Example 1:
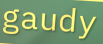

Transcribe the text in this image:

gaudy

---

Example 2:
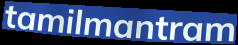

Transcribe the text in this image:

tamilmantram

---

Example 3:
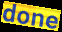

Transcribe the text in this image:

done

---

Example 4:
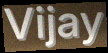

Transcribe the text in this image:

Vijay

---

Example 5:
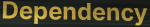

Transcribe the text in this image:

Dependency